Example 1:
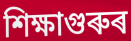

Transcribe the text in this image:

শিক্ষাগুৰুৰ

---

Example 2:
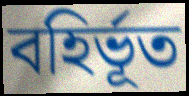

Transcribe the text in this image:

বহিৰ্ভূত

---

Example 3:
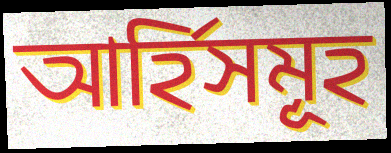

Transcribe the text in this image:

আৰ্হিসমূহ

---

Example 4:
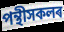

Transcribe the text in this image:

পন্থীসকলৰ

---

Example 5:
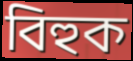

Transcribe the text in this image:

বিহুক